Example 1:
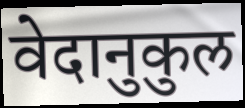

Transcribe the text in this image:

वेदानुकुल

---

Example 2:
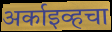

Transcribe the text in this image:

अर्काइव्हचा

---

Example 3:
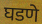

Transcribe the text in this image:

घडणे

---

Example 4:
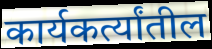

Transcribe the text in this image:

कार्यकर्त्यांतील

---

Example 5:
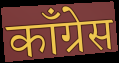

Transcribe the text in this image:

कॉंग्रेस